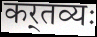
कर्तव्यः